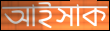
আইসাক